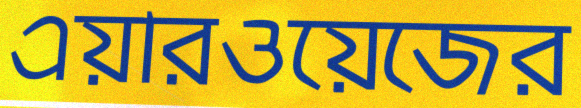
এয়ারওয়েজের